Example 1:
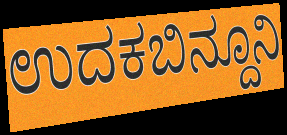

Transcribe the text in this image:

ಉದಕಬಿನ್ದೂನಿ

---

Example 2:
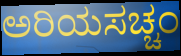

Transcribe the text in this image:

ಅರಿಯಸಚ್ಚಂ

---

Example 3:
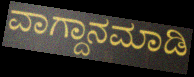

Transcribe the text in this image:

ವಾಗ್ದಾನಮಾಡಿ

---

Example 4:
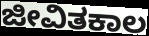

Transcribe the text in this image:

ಜೀವಿತಕಾಲ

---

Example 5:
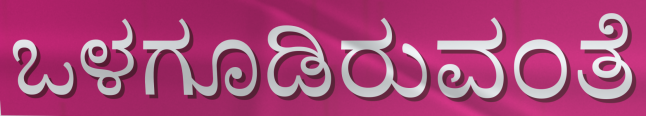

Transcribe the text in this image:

ಒಳಗೂಡಿರುವಂತೆ